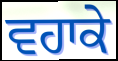
ਵਹਾਕੇ